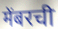
मेंबरची